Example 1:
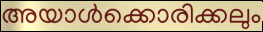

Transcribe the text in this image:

അയാൾക്കൊരിക്കലും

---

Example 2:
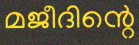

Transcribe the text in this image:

മജീദിന്റെ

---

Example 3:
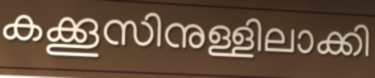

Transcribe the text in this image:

കക്കൂസിനുള്ളിലാക്കി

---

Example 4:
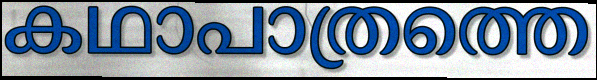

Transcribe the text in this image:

കഥാപാത്രത്തെ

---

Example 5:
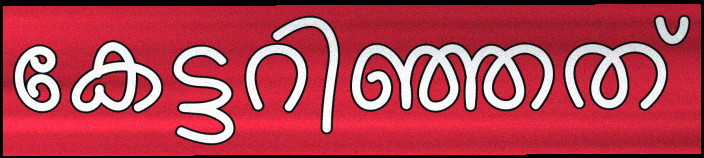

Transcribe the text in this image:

കേട്ടറിഞ്ഞത്